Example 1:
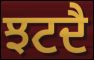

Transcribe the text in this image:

ਝਟਦੈ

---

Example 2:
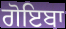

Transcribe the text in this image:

ਗੋਇਬਾ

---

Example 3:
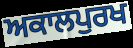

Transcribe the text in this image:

ਅਕਾਲਪੁਰਖ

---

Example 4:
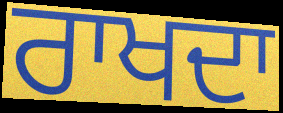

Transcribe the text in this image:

ਰਾਖਦਾ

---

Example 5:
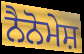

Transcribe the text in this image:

ਨੈਨੋਮੇਸ਼